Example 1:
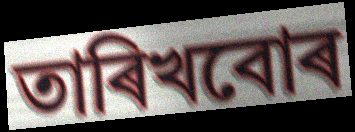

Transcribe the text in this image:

তাৰিখবোৰ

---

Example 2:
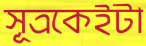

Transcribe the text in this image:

সূত্ৰকেইটা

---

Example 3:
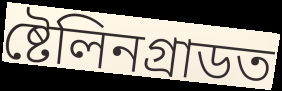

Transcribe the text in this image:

ষ্টেলিনগ্ৰাডত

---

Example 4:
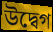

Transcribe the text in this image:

উদ্বেগ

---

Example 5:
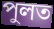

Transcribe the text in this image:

পুলত